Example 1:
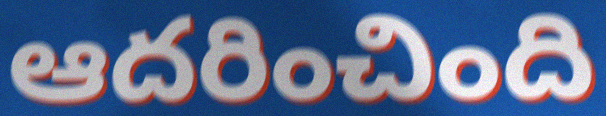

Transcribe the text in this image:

ఆదరించింది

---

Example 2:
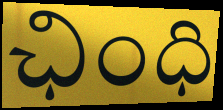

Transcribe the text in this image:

ఛింధి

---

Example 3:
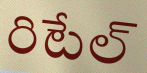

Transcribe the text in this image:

రిటేల్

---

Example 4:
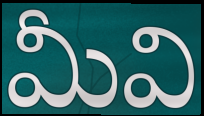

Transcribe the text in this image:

మీవి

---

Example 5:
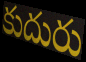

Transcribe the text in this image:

కుదురు